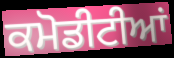
ਕਮੋਡੀਟੀਆਂ